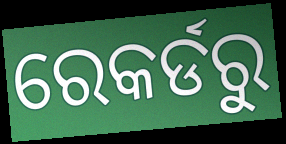
ରେକର୍ଡରୁ